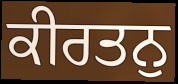
ਕੀਰਤਨੁ